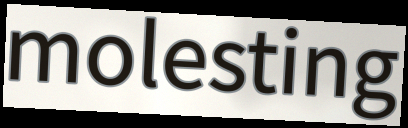
molesting